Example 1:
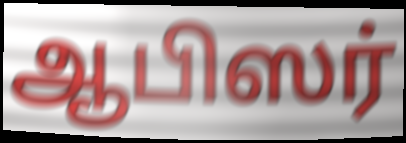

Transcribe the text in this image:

ஆபிஸர்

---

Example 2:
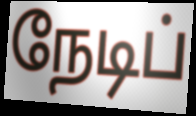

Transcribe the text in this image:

நேடிப்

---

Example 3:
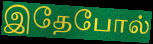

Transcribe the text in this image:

இதேபோல்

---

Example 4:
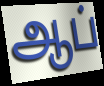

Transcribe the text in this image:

ஆப்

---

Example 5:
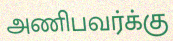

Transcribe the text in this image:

அணிபவர்க்கு